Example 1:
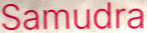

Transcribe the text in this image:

Samudra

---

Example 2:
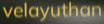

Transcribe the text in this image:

velayuthan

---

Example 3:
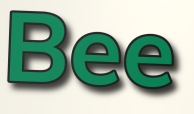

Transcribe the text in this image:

Bee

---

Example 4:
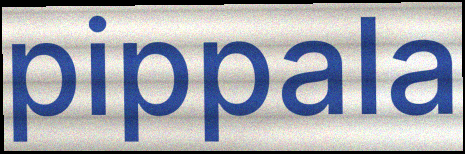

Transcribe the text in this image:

pippala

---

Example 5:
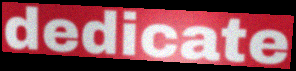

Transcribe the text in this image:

dedicate